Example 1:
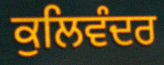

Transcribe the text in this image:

ਕੁਲਿਵੰਦਰ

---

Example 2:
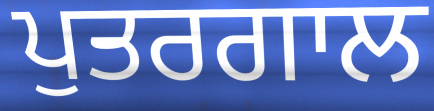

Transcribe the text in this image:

ਪੁਤਰਗਾਲ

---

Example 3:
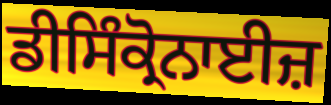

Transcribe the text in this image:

ਡੀਸਿੰਕ੍ਰੋਨਾਈਜ਼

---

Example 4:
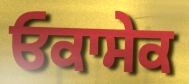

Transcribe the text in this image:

ਓਕਾਸੇਕ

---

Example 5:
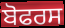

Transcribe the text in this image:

ਬੋਫਰਸ